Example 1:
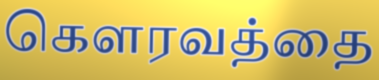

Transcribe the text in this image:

கௌரவத்தை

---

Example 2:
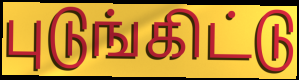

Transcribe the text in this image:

புடுங்கிட்டு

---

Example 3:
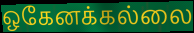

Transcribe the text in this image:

ஒகேனக்கல்லை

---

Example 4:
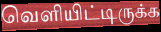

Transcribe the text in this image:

வெளியிட்டிருக்க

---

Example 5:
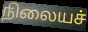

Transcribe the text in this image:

நிலையச்